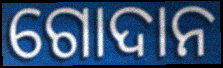
ଗୋଦାନ